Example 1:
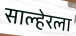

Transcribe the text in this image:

साल्हेरला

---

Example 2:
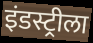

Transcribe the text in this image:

इंडस्ट्रीला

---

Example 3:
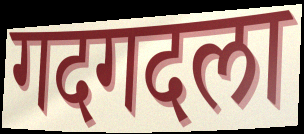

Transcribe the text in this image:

गदगदला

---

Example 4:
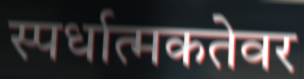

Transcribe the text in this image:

स्पर्धात्मकतेवर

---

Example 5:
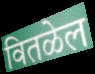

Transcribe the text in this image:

वितळेल